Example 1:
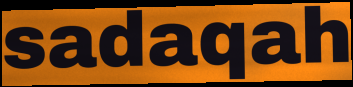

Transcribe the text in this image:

sadaqah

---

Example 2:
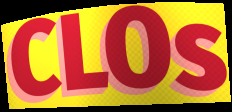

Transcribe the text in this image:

CLOs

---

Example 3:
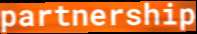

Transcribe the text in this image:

partnership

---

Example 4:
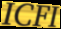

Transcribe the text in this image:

ICFI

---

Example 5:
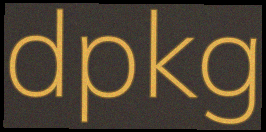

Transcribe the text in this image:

dpkg